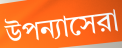
উপন্যাসেরা